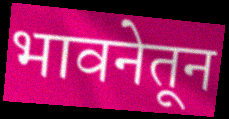
भावनेतून